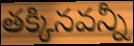
తక్కినవన్నీ